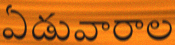
ఏడువారాల